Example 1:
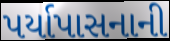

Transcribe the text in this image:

પર્યાપાસનાની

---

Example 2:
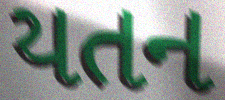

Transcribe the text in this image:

યતન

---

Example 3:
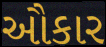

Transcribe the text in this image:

ઔકાર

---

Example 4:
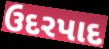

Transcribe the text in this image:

ઉદરપાદ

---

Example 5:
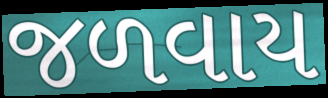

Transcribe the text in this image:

જળવાય